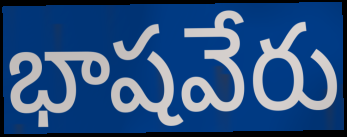
భాషవేరు